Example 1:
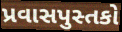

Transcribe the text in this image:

પ્રવાસપુસ્તકો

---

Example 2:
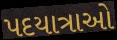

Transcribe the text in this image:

પદયાત્રાઓ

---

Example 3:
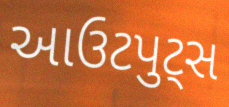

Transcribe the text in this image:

આઉટપુટ્સ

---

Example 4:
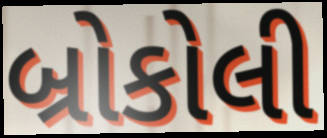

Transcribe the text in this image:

બ્રોકોલી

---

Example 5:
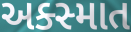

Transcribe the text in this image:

અક્સ્માત